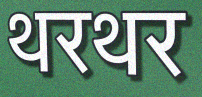
थरथर